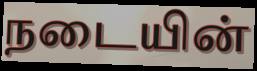
நடையின்